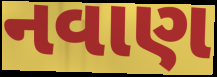
નવાણ